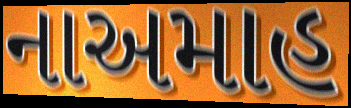
નાઅમાહ